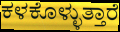
ಕಳಕೊಳ್ಳುತ್ತಾರೆ